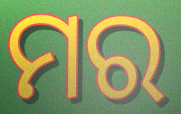
ମର